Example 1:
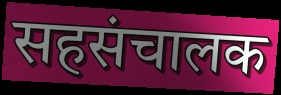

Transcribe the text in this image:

सहसंचालक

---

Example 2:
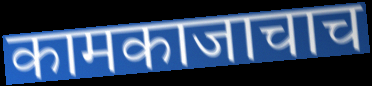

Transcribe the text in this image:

कामकाजाचाच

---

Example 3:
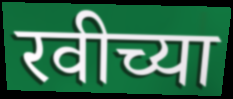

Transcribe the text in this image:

रवीच्या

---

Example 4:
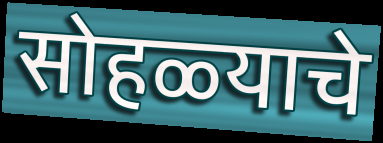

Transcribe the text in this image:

सोहळ्याचे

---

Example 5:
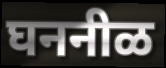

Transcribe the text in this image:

घननीळ